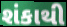
શંકાથી